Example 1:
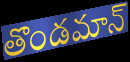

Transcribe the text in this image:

తొండమాన్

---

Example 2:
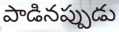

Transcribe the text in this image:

పాడినప్పుడు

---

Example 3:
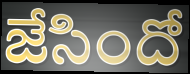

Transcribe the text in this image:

జేసిందో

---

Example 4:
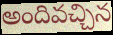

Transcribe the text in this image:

అందివచ్చిన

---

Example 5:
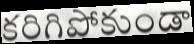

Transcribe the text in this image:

కరిగిపోకుండా